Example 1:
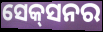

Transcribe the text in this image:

ସେକ୍‌ସନର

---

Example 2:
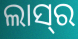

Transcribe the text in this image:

ଲାସ୍‌ର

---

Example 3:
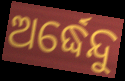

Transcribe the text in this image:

ଅର୍ଦ୍ଧେନ୍ଦୁ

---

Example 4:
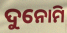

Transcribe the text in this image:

ଦୁନୋମି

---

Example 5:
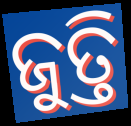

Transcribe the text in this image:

ଜୁତ୍ତି